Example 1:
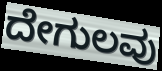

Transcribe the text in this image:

ದೇಗುಲವು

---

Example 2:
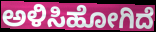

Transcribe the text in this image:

ಅಳಿಸಿಹೋಗಿದೆ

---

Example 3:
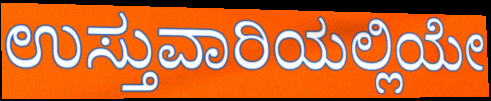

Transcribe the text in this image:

ಉಸ್ತುವಾರಿಯಲ್ಲಿಯೇ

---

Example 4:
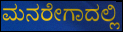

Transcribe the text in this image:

ಮನರೇಗಾದಲ್ಲಿ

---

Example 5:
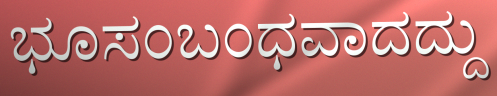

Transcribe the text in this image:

ಭೂಸಂಬಂಧವಾದದ್ದು